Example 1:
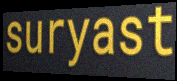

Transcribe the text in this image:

suryast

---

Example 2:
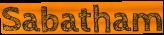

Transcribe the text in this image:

Sabatham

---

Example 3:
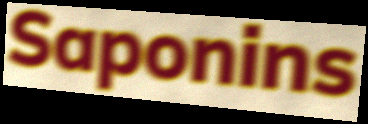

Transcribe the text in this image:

Saponins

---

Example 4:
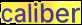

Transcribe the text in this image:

caliber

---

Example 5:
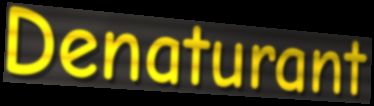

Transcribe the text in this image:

Denaturant